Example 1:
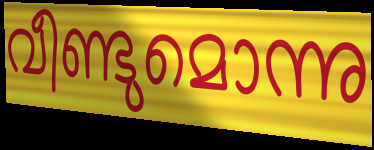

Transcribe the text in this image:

വീണ്ടുമൊന്നു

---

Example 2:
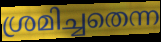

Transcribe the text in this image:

ശ്രമിച്ചതെന്ന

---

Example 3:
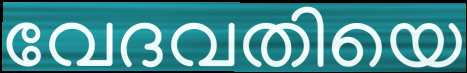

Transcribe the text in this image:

വേദവതിയെ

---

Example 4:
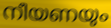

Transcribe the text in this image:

നീയണയും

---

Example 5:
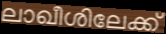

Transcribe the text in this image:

ലാഖീശിലേക്ക്